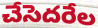
చేసెదరేల